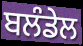
ਬਲੰਡੇਲ